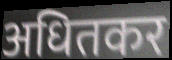
अधितकर